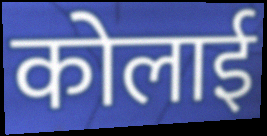
कोलाई